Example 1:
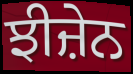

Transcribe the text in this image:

ਝੀਜ਼ੇਨ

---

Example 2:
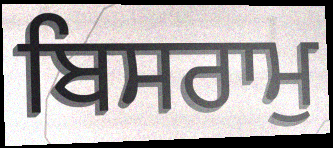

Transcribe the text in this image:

ਬਿਸਰਾਮੁ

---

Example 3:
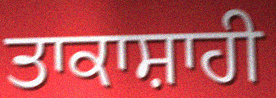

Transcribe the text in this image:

ਤਾਕਾਸ਼ਾਹੀ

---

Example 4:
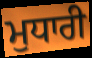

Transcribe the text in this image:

ਮੁਧਾਰੀ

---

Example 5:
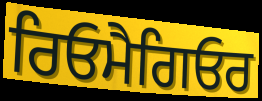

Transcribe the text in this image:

ਰਿਓਮੈਗਿਓਰ